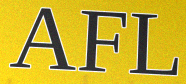
AFL